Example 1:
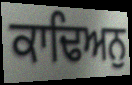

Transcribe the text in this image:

ਕਾਢਿਅਨੁ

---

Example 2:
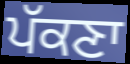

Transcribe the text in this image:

ਪੱਕਣਾ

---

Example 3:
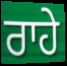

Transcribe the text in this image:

ਰਾਹੇ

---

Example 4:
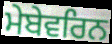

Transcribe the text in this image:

ਮੇਬੇਵਰਿਨ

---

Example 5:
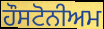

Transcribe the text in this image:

ਹੌਸਟੋਨੀਅਮ